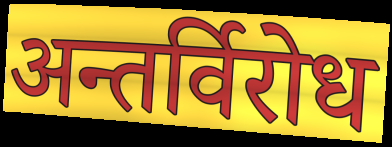
अन्तर्विरोध